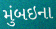
મુંબઇના